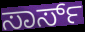
ಸಾರ್ಸ್